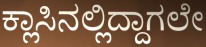
ಕ್ಲಾಸಿನಲ್ಲಿದ್ದಾಗಲೇ